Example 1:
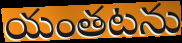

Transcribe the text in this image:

యంతటను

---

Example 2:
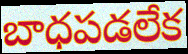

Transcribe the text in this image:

బాధపడలేక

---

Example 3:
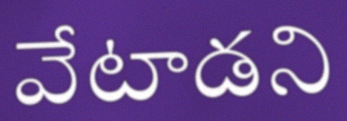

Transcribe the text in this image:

వేటాడని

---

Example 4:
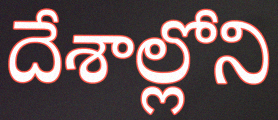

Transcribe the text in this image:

దేశాల్లోని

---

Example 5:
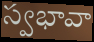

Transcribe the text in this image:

స్వభావా